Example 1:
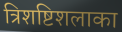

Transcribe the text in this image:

त्रिशष्टिशलाका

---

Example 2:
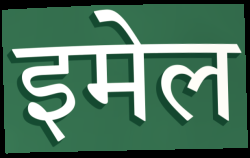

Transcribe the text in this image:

इमेल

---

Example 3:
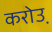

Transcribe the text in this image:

करोउ़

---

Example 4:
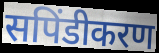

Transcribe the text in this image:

सपिंडीकरण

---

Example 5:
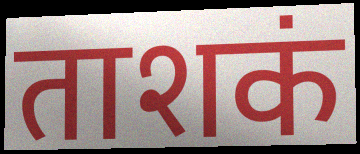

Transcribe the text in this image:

ताशकं